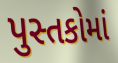
પુસ્તકોમાં